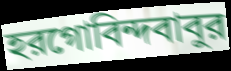
হরগোবিন্দবাবুর